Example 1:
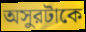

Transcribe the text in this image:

অসুরটাকে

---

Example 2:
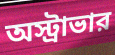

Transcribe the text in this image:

অস্ট্রাভার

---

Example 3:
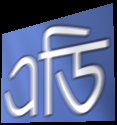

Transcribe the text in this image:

এডি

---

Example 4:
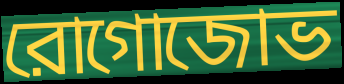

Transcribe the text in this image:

রোগোজোভ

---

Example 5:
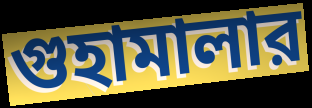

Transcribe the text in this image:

গুহামালার